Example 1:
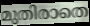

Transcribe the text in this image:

മുതിരാതെ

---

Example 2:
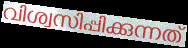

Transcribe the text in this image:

വിശ്വസിപ്പിക്കുന്നത്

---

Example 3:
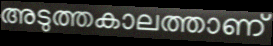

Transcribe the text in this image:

അടുത്തകാലത്താണ്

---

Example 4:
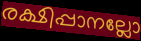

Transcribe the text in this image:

രക്ഷിപ്പാനല്ലോ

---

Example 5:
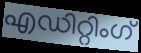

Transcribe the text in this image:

എഡിറ്റിംഗ്